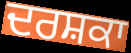
ਦਰਸ਼ਕਾ